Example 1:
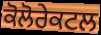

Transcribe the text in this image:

ਕੋਲੋਰੇਕਟਲ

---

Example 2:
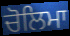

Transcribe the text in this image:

ਚੋਲਿਮਾ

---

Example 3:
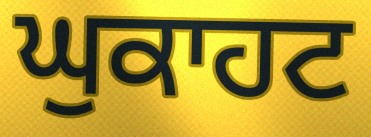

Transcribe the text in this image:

ਘੁਕਾਹਟ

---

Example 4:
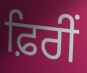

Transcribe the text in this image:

ਫ਼ਿਰੀਂ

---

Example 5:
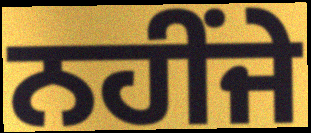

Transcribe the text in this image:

ਨਹੀਂਜੇ